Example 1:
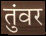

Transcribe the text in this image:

तुंवर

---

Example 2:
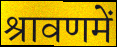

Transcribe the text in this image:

श्रावणमें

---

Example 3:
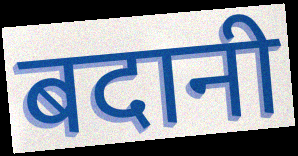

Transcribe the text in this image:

बदानी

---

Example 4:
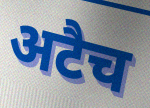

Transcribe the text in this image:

अटैच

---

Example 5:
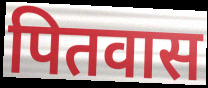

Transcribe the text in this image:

पितवास